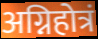
अग्निहोत्रं